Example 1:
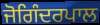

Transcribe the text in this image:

ਜੋਗਿੰਦਰਪਾਲ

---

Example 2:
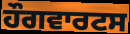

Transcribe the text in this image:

ਹੌਗਵਾਰਟਸ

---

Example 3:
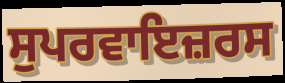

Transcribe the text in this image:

ਸੁਪਰਵਾਇਜ਼ਰਸ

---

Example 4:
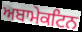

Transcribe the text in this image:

ਅਬਾਮੇਕਟਿਨ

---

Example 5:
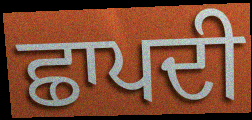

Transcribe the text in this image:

ਛਾਪਦੀ